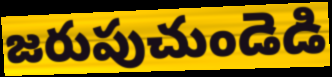
జరుపుచుండెడి